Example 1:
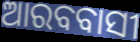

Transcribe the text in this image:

ଆରବବାସୀ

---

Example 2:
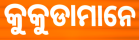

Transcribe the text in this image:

କୁକୁଡାମାନେ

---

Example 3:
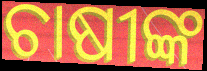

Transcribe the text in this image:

ଚାଷୀଙ୍କ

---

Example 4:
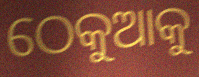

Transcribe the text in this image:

ଠେକୁଆକୁ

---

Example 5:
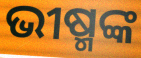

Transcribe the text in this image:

ଭୀଷ୍ମଙ୍କ